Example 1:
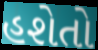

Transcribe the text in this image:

હશેતો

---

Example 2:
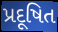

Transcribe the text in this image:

પ્રદૂષિત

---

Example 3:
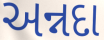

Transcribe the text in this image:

અન્નદા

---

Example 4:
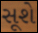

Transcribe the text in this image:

સૂશે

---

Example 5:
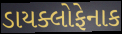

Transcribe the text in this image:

ડાયક્લોફેનાક